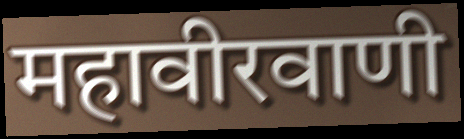
महावीरवाणी